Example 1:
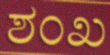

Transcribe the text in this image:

ಶಂಖ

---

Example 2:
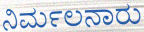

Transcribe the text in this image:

ನಿರ್ಮಲನಾರು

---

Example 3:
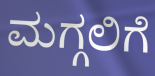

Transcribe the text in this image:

ಮಗ್ಗಲಿಗೆ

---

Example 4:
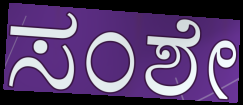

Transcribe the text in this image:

ಸಂಶೇ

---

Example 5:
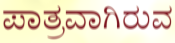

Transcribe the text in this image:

ಪಾತ್ರವಾಗಿರುವ